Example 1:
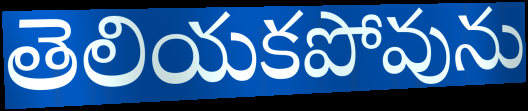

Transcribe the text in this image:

తెలియకపోవును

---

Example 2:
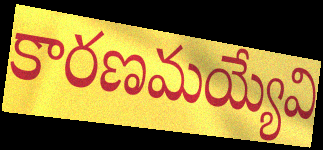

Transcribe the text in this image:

కారణమయ్యేవి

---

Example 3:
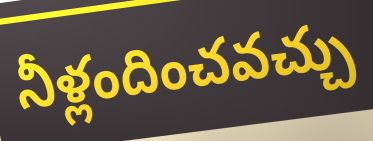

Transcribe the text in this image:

నీళ్లందించవచ్చు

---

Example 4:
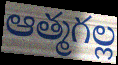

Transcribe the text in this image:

ఆత్మగల్ల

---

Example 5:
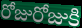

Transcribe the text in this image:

రోజురోజుకి